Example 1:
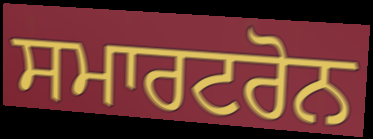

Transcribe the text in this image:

ਸਮਾਰਟਰੋਨ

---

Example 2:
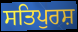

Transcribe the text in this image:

ਸਤਿਪੁਰਸ਼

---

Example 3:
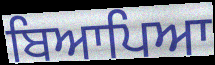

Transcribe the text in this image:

ਬਿਆਪਿਆ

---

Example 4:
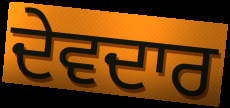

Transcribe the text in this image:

ਦੇਵਦਾਰ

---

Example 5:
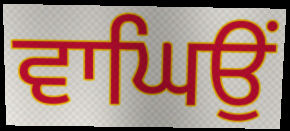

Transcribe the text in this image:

ਵਾਘਿਉਂ